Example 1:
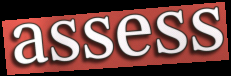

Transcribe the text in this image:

assess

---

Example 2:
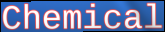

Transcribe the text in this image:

Chemical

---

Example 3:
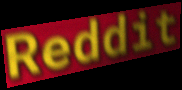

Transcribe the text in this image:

Reddit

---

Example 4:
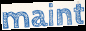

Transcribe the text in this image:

maint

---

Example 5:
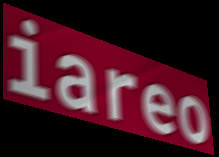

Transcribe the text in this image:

iareo